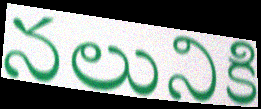
నలునికి